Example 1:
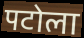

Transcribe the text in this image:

पटोला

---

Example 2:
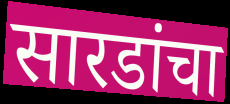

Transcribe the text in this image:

सारडांचा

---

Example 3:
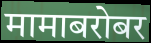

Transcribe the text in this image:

मामाबरोबर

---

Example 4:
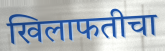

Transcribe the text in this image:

खिलाफतीचा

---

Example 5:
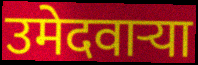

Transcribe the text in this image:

उमेदवाऱ्या